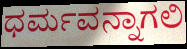
ಧರ್ಮವನ್ನಾಗಲಿ